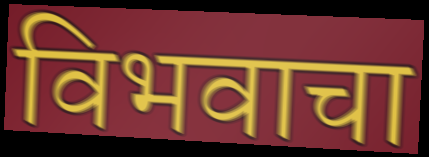
विभवाचा